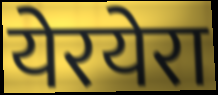
येरयेरा